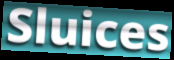
Sluices